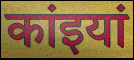
कांइयां